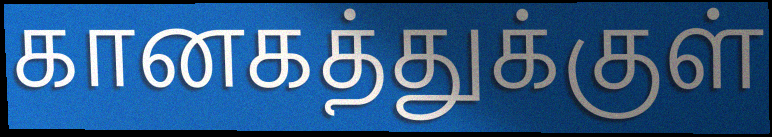
கானகத்துக்குள்